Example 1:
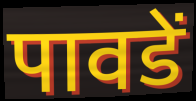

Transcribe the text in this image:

पावडें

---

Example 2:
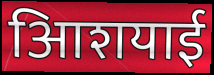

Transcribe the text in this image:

आिशयाई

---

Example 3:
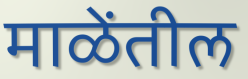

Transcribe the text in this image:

माळेंतील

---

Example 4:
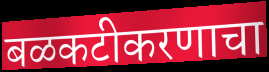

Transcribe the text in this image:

बळकटीकरणाचा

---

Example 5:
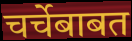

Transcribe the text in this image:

चर्चेबाबत